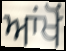
ਆਂਖੋਂ